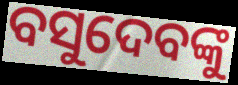
ବସୁଦେବଙ୍କୁ